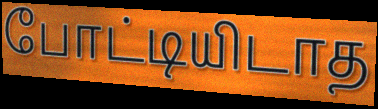
போட்டியிடாத